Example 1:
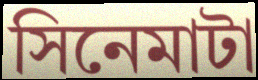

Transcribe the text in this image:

সিনেমাটা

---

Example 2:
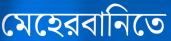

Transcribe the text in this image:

মেহেরবানিতে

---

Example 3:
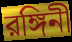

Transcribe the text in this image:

রঙ্গিনী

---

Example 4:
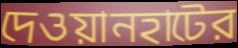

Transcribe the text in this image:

দেওয়ানহাটের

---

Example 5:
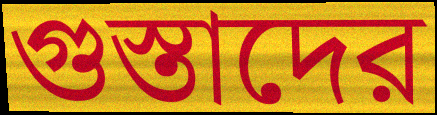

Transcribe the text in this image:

গুস্তাদের